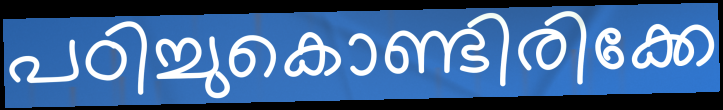
പഠിച്ചുകൊണ്ടിരിക്കേ